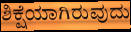
ಶಿಕ್ಷೆಯಾಗಿರುವುದು